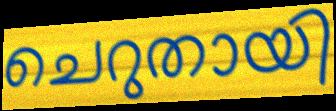
ചെറുതായി